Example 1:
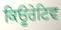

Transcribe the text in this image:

ਕਿਊਰੇਟਿਵ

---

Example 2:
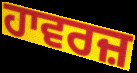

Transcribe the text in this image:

ਹਾਵਰਜ਼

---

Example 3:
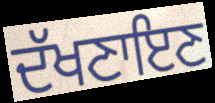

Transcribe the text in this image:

ਦੱਖਣਾਇਣ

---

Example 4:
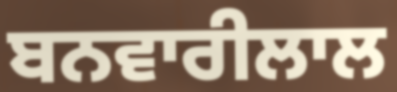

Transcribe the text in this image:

ਬਨਵਾਰੀਲਾਲ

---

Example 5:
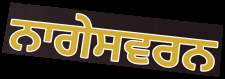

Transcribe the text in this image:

ਨਾਗੇਸਵਰਨ